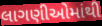
લાગણીઓમાંથી